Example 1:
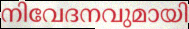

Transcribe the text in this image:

നിവേദനവുമായി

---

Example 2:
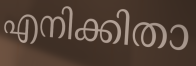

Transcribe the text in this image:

എനിക്കിതാ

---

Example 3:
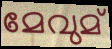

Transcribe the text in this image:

മേവുമ്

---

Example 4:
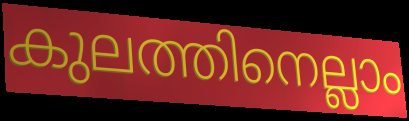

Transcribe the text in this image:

കുലത്തിനെല്ലാം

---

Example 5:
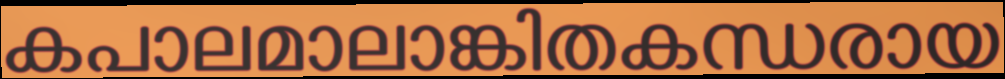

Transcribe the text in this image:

കപാലമാലാങ്കിതകന്ധരായ